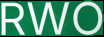
RWO